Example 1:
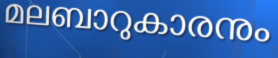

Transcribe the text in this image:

മലബാറുകാരനും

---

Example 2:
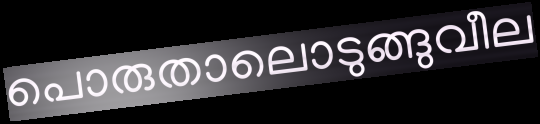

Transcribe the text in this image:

പൊരുതാലൊടുങ്ങുവീല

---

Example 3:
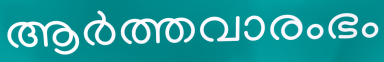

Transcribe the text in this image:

ആർത്തവാരംഭം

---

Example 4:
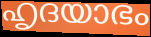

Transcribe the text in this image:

ഹൃദയാഭം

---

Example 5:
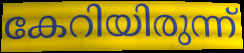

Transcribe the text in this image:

കേറിയിരുന്ന്